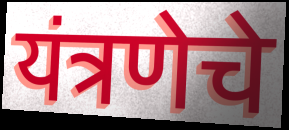
यंत्रणेचे